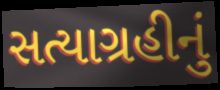
સત્યાગ્રહીનું